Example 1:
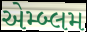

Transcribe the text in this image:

એમ્બ્લમ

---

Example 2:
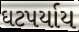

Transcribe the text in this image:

ઘટપર્યાય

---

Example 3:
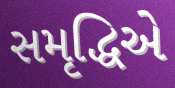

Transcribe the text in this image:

સમૃદ્ધિએ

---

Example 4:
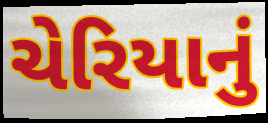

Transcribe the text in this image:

ચેરિયાનું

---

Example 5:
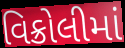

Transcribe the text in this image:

વિક્રોલીમાં